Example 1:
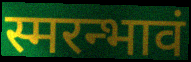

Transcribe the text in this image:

स्मरन्भावं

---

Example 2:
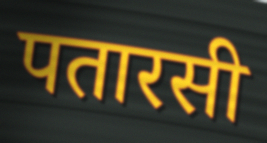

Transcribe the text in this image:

पतारसी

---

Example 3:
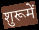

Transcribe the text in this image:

शुरूमें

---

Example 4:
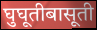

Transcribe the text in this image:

घुघूतीबासूती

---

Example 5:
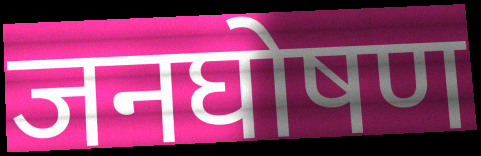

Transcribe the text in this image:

जनघोषण